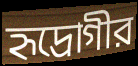
হৃদ্রোগীর